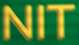
NIT